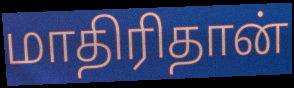
மாதிரிதான்